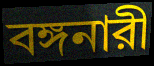
বঙ্গনারী